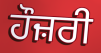
ਹੌਜ਼ਰੀ